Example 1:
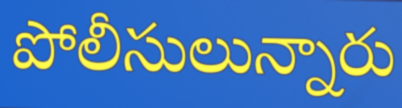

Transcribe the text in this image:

పోలీసులున్నారు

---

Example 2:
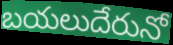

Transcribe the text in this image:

బయలుదేరునో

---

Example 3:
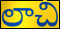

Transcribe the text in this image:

లాచి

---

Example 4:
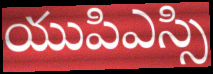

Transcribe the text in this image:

యుపిఎస్సి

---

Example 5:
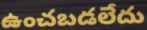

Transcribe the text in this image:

ఉంచబడలేదు